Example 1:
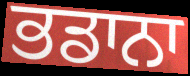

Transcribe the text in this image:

ਭਡਾਨਾ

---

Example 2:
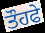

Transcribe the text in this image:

ਤੌਹਫੇ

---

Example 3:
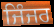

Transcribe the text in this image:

ਜਿੰਜਰ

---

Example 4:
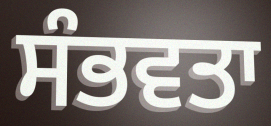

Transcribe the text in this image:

ਸੰਭਵਤਾ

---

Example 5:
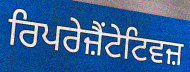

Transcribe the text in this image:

ਰਿਪਰੇਜ਼ੈਂਟੇਟਿਵਜ਼